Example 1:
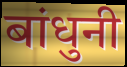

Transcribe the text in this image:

बांधुनी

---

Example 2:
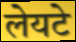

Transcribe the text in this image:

लेयटे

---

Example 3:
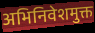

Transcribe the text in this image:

अभिनिवेशमुक्त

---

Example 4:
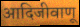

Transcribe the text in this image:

आदिजीवाणू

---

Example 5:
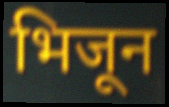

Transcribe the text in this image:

भिजून